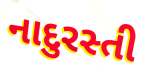
નાદુરસ્તી